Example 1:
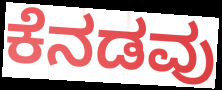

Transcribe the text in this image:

ಕೆನಡವು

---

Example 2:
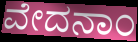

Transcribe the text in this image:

ವೇದನಾಂ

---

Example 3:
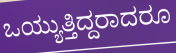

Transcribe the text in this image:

ಒಯ್ಯುತ್ತಿದ್ದರಾದರೂ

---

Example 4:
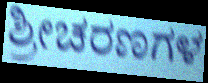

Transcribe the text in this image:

ಶ್ರೀಚರಣಗಳ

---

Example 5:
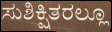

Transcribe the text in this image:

ಸುಶಿಕ್ಷಿತರಲ್ಲೂ